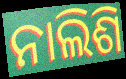
ନାଲିଶି